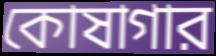
কোষাগার